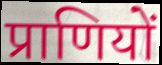
प्राणियों